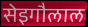
सेइगौलाल